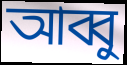
আব্বু